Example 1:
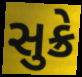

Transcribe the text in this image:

સુક્રે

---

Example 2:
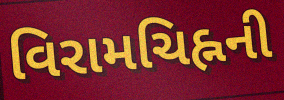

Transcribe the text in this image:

વિરામચિહ્નની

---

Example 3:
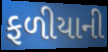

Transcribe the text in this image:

ફળીયાની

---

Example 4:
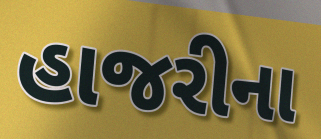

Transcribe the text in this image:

હાજરીના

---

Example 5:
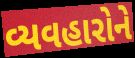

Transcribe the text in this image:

વ્યવહારોને